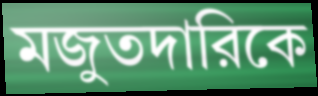
মজুতদারিকে